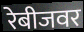
रेबीजवर